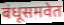
बंधूसमवेत